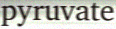
pyruvate